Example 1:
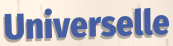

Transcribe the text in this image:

Universelle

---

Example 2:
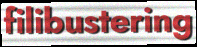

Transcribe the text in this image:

filibustering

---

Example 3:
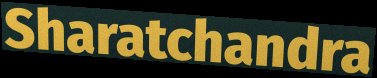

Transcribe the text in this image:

Sharatchandra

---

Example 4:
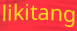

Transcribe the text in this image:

likitang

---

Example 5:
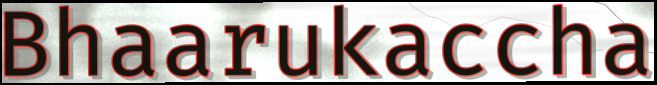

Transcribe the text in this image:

Bhaarukaccha